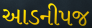
આડનીપજ